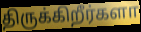
திருக்கிறீர்களா